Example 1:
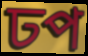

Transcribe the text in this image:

ঢপ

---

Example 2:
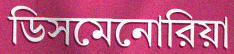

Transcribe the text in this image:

ডিসমেনোরিয়া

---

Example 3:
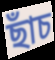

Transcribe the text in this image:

ছাঁচ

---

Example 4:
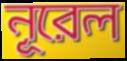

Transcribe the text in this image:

নূরেল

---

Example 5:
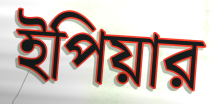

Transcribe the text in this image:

ইপিয়ার